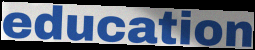
education